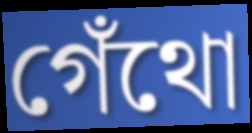
গেঁথো